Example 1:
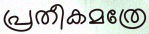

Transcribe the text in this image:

പ്രതീകമത്രേ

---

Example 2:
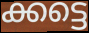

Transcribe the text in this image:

ക്കട്ടെ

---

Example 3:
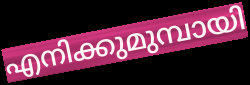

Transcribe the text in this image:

എനിക്കുമുമ്പായി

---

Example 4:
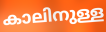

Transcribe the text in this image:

കാലിനുള്ള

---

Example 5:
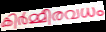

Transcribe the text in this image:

കിർമ്മീരവധം